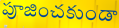
పూజించకుండా